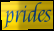
prides